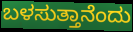
ಬಳಸುತ್ತಾನೆಂದು